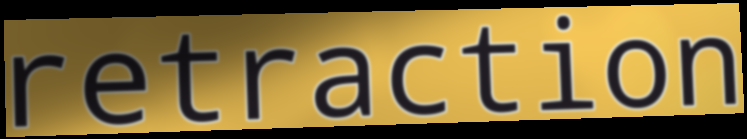
retraction